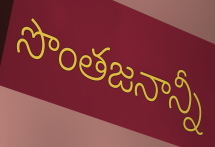
సొంతజనాన్నీ